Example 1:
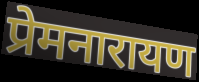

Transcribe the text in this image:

प्रेमनारायण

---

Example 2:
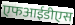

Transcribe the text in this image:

एफआईडीएस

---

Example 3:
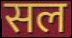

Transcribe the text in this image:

सल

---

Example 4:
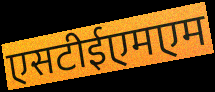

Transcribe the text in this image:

एसटीईएमएम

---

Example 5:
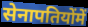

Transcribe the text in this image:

सेनापतियोंमें